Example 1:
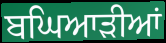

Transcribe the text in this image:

ਬਘਿਆੜੀਆਂ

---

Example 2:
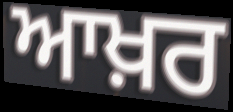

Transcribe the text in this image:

ਆਖ਼ਰ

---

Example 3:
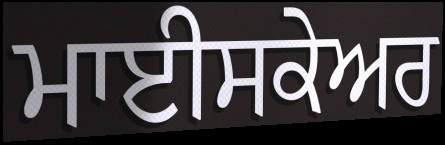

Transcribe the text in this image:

ਮਾਈਸਕੇਅਰ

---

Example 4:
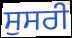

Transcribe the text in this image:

ਸੁਸਰੀ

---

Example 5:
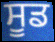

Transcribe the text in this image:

ਸੂਡ